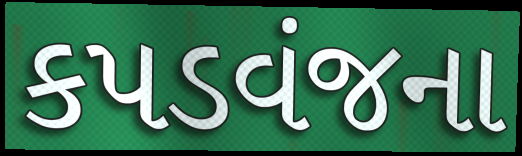
કપડવંજના